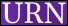
URN